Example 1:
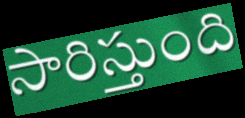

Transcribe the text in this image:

సారిస్తుంది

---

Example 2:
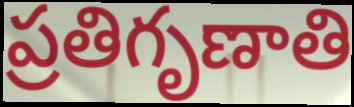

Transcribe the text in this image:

ప్రతిగృణాతి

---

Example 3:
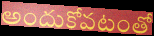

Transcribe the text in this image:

అందుకోవటంతో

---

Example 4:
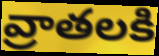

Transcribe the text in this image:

వ్రాతలకి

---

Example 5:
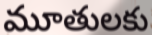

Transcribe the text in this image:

మూతులకు